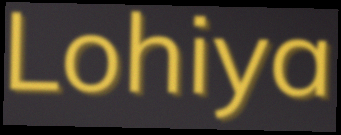
Lohiya